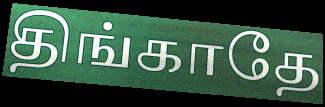
திங்காதே